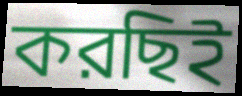
করছিই